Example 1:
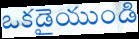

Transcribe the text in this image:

ఒకడైయుండి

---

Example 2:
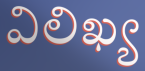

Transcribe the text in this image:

విలిఖ్య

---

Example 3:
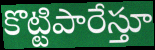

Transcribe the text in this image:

కొట్టిపారేస్తూ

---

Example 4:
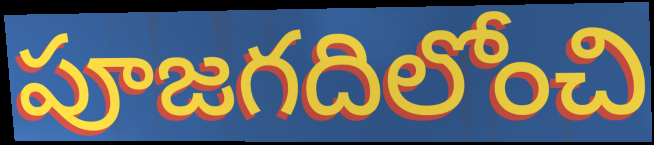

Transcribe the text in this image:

పూజగదిలోంచి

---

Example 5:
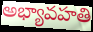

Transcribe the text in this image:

అభ్యావహతి